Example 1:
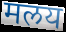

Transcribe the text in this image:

मलय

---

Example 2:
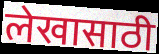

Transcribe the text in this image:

लेखासाठी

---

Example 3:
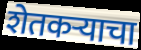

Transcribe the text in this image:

शेतकऱ्याचा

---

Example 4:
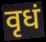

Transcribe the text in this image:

वृधं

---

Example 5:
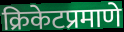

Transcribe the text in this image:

क्रिकेटप्रमाणे